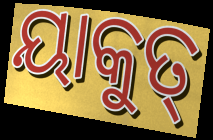
ୟାକୁତ୍